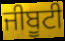
ਜੀਬੂਟੀ